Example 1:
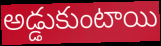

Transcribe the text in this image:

అడ్డుకుంటాయి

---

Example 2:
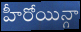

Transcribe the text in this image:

హీరోయిన్గా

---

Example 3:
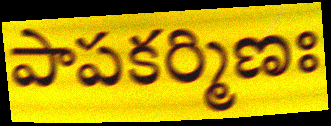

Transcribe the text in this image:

పాపకర్మిణః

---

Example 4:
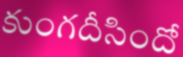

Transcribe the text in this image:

కుంగదీసిందో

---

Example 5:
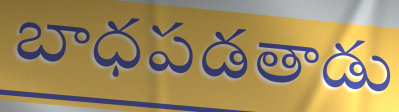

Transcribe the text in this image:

బాధపడతాడు